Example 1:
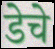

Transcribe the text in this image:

डेचे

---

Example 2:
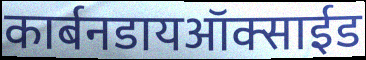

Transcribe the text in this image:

कार्बनडायऑक्साईड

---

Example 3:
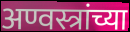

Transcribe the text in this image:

अण्वस्त्रांच्या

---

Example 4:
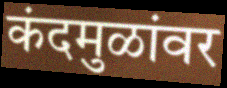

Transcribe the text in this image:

कंदमुळांवर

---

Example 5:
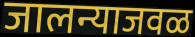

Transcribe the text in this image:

जालन्याजवळ